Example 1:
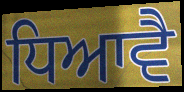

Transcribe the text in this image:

ਧਿਆਵੈ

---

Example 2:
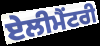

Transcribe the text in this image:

ਏਲੀਮੈਂਟਰੀ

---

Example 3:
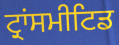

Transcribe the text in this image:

ਟ੍ਰਾਂਸਮੀਟਿਡ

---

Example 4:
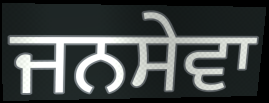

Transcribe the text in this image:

ਜਨਸੇਵਾ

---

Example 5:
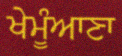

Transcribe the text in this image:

ਖੇਮੂੰਆਣਾ